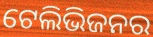
ଟେଲିଭିଜନର